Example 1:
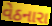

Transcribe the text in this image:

વેઠનારા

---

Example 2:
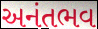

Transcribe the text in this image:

અનંતભવ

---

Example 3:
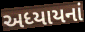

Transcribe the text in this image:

અધ્યાયનાં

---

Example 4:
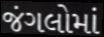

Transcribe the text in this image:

જંગલોમાં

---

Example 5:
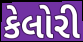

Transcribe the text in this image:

કેલોરી